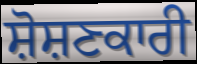
ਸ਼ੋਸ਼ਣਕਾਰੀ